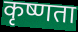
कृष्णता